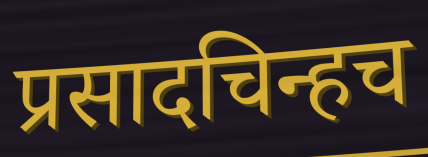
प्रसादचिन्हच